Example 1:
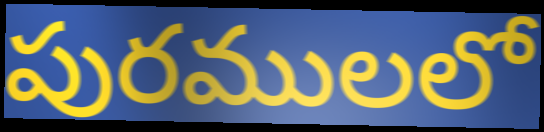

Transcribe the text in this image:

పురములలో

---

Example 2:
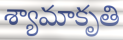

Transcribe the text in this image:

శ్యామాకృతి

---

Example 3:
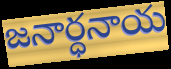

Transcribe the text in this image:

జనార్ధనాయ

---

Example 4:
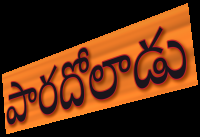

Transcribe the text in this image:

పారదోలాడు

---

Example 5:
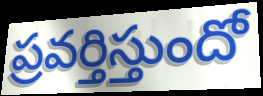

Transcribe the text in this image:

ప్రవర్తిస్తుందో